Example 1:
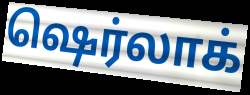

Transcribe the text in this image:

ஷெர்லாக்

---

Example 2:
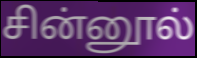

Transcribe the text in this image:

சின்னூல்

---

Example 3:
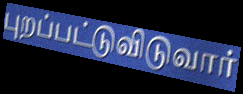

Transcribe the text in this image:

புறப்பட்டுவிடுவார்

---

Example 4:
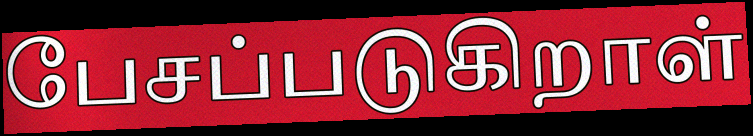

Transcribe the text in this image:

பேசப்படுகிறாள்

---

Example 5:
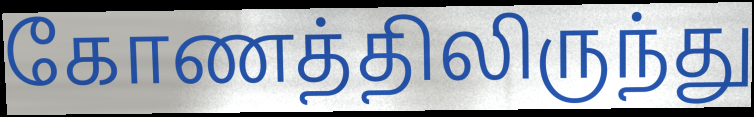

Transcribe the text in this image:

கோணத்திலிருந்து